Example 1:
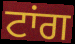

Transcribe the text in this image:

ਟਾਂਗ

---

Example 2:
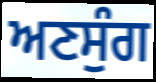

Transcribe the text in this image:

ਅਣਸੁੰਗ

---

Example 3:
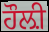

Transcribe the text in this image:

ਹੌਲ਼ੀ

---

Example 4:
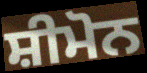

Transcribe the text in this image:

ਸ਼ੀਮੋਨ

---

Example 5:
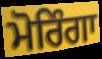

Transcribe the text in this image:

ਮੋਰਿੰਗਾ